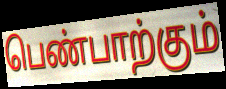
பெண்பாற்கும்